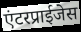
एंटरप्राईजेस